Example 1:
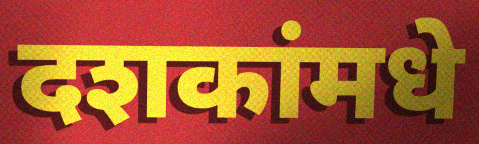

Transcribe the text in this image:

दशकांमधे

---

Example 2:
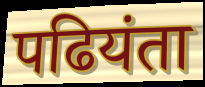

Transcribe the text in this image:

पढियंता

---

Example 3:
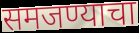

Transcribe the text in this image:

समजण्याचा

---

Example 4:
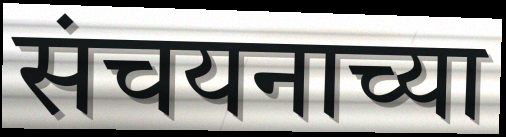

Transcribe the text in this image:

संचयनाच्या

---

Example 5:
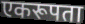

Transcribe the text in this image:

एकरूपता